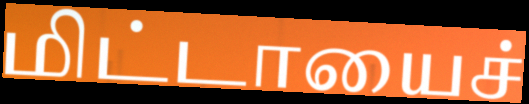
மிட்டாயைச்